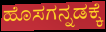
ಹೊಸಗನ್ನಡಕ್ಕೆ